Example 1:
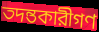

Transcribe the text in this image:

তদন্তকারীগণ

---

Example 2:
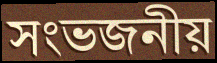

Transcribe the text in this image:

সংভজনীয়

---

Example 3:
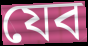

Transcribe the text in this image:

যেব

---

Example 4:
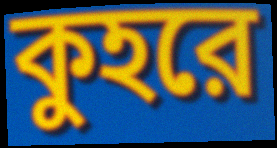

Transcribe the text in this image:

কুহরে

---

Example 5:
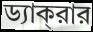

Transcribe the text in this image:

ড্যাক্‌রার